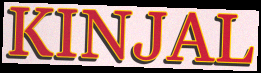
KINJAL